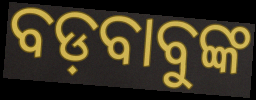
ବଡ଼ବାବୁଙ୍କ